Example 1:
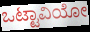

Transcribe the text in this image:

ಒಟ್ಟಾವಿಯೋ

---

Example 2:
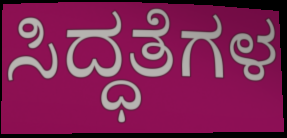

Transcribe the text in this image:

ಸಿದ್ಧತೆಗಳ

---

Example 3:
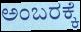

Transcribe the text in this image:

ಅಂಬರಕ್ಕೆ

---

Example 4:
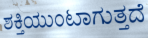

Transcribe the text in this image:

ಶಕ್ತಿಯುಂಟಾಗುತ್ತದೆ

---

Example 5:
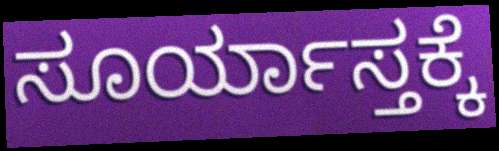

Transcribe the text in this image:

ಸೂರ್ಯಾಸ್ತಕ್ಕೆ